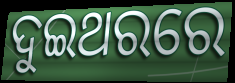
ଦୁଇଥରରେ